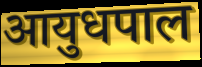
आयुधपाल